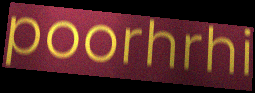
poorhrhi